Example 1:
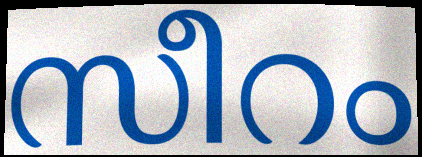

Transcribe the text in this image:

സീറം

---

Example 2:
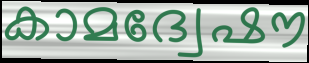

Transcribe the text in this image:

കാമദ്വേഷൗ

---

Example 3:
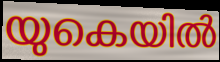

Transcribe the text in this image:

യുകെയിൽ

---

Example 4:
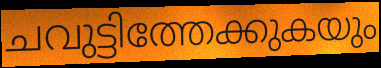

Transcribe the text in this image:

ചവുട്ടിത്തേക്കുകയും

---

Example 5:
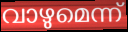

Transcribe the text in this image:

വാഴുമെന്ന്